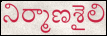
నిర్మాణశైలి